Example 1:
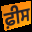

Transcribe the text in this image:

ਫ਼ੀਸ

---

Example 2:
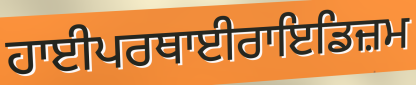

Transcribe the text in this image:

ਹਾਈਪਰਥਾਈਰਾਇਡਿਜ਼ਮ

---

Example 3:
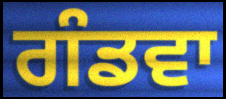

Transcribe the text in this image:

ਗੰਡਵਾ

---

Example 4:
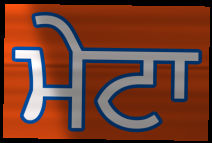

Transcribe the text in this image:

ਮੇਟਾ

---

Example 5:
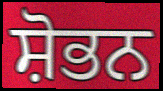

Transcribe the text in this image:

ਸ਼ੋਭਨ